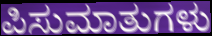
ಪಿಸುಮಾತುಗಳು